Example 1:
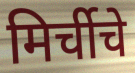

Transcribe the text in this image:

मिर्चीचे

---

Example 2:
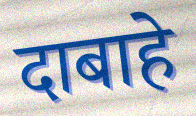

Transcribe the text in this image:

दाबाहे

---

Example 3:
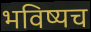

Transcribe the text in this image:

भविष्यच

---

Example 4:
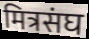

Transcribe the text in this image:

मित्रसंघ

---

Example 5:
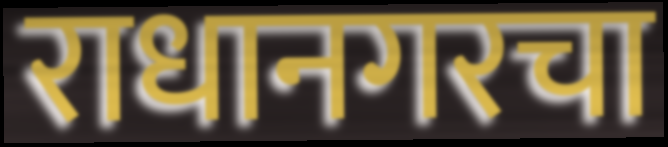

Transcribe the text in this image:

राधानगरचा